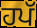
ਹਪੱ